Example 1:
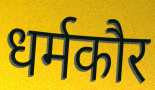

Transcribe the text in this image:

धर्मकौर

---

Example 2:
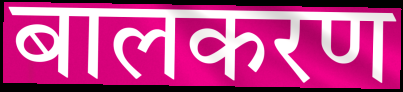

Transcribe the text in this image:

बालकरण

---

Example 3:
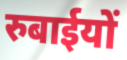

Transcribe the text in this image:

रुबाईयों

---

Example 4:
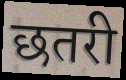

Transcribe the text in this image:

छतरी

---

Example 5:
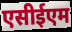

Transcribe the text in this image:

एसीईएम